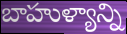
బాహుళ్యాన్ని